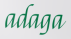
adaga